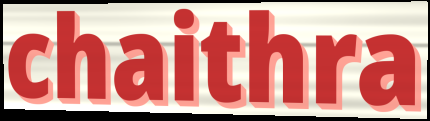
chaithra